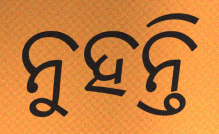
ନୁହନ୍ତି